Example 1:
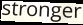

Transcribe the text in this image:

stronger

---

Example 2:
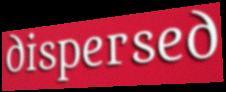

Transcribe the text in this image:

dispersed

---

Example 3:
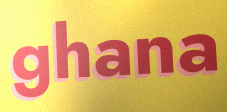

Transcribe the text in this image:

ghana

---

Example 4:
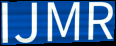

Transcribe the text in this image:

IJMR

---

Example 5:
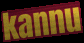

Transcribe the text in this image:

kannu